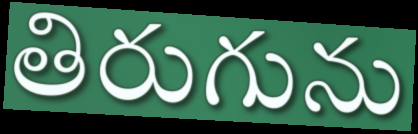
తిరుగును